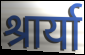
श्रार्या